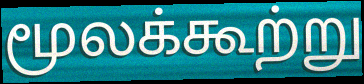
மூலக்கூற்று